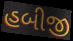
હબીજી